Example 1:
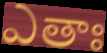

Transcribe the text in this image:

ఎతాః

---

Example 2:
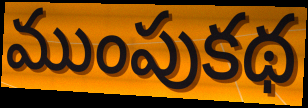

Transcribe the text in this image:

ముంపుకథ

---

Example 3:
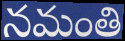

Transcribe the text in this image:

నమంతి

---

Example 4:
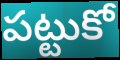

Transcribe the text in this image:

పట్టుకో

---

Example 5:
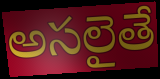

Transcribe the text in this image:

అసలైతే